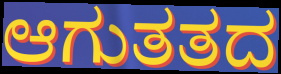
ಆಗುತತದ